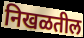
निखळतील